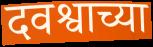
दवश्वाच्या